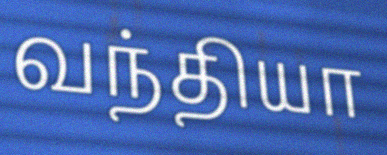
வந்தியா